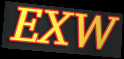
EXW